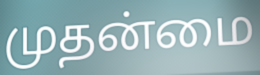
முதன்மை